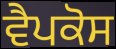
ਵੈਪਕੋਸ